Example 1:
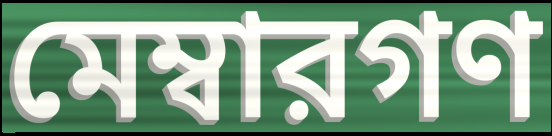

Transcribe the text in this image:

মেম্বারগণ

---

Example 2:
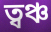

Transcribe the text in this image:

ত্বঞ্চ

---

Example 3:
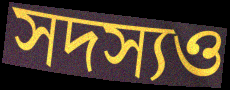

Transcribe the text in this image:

সদস্যও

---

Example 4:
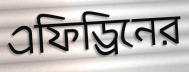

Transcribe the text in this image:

এফিড্রিনের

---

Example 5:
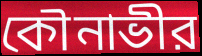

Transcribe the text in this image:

কৌনাভীর